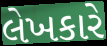
લેખકારે